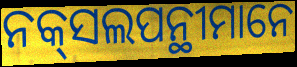
ନକ୍‌ସଲପନ୍ଥୀମାନେ